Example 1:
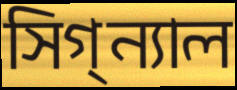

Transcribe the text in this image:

সিগ্‌ন্যাল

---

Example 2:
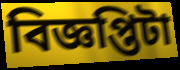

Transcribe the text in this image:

বিজ্ঞপ্তিটা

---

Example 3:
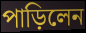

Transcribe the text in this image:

পাড়িলেন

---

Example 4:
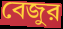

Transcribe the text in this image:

বেজুর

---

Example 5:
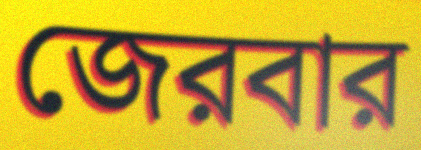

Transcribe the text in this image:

জেরবার